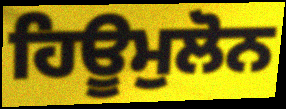
ਹਿਊਮੁਲੋਨ